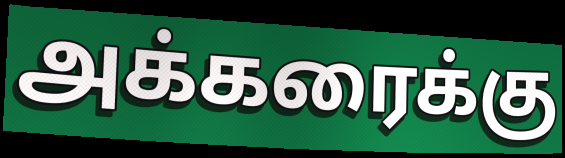
அக்கரைக்கு